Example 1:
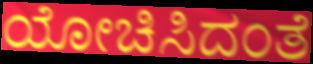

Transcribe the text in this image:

ಯೋಚಿಸಿದಂತೆ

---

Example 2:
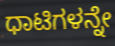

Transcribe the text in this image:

ಧಾಟಿಗಳನ್ನೇ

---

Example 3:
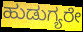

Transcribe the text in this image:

ಹುಡುಗ್ಯರೇ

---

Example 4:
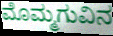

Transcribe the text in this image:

ಮೊಮ್ಮಗುವಿನ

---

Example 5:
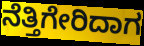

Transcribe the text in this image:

ನೆತ್ತಿಗೇರಿದಾಗ